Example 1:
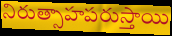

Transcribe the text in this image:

నిరుత్సాహపరుస్తాయి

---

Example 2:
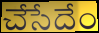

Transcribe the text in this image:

చేసేదేం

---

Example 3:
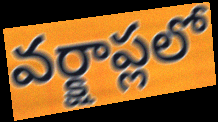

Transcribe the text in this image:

వర్క్షాప్లలో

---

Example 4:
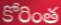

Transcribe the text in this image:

కోరింత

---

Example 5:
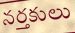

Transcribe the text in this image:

నర్తకులు